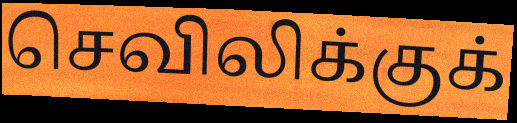
செவிலிக்குக்